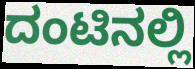
ದಂಟಿನಲ್ಲಿ